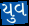
યુવ